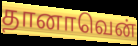
தானாவென்